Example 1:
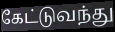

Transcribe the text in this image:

கேட்டுவந்து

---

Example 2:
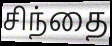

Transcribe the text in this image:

சிந்தை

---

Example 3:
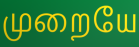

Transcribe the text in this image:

முறையே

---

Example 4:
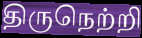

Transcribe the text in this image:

திருநெற்றி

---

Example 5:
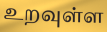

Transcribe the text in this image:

உறவுள்ள